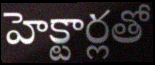
హెక్టార్లతో